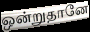
ஒன்றுதானே